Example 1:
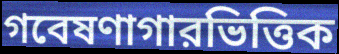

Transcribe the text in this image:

গবেষণাগারভিত্তিক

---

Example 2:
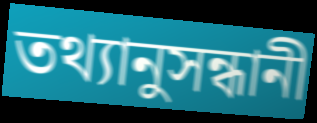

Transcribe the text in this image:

তথ্যানুসন্ধানী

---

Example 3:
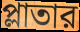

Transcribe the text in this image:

প্লাতার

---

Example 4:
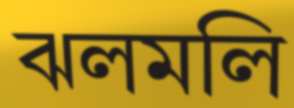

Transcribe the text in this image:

ঝলমলি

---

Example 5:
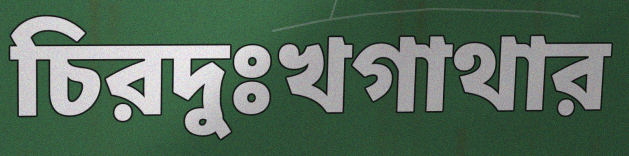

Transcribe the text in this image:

চিরদুঃখগাথার